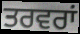
ਤਰਵਰਾਂ